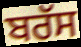
ਬਰੱਸ